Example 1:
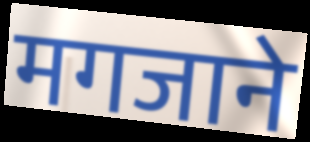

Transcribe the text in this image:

मगजाने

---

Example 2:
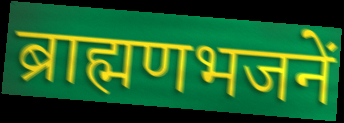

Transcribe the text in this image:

ब्राह्मणभजनें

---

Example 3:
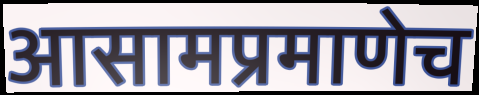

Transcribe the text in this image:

आसामप्रमाणेच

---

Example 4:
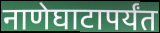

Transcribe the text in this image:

नाणेघाटापर्यंत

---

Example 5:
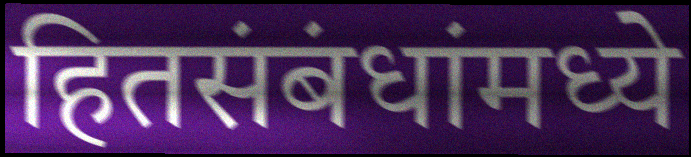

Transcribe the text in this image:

हितसंबंधांमध्ये